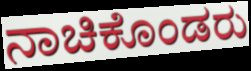
ನಾಚಿಕೊಂಡರು